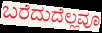
ಬರೆದುದೆಲ್ಲವೂ